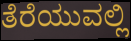
ತೆರೆಯುವಲ್ಲಿ